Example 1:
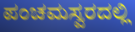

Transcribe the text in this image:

ಪಂಚಮಸ್ವರದಲ್ಲಿ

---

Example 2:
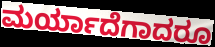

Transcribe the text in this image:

ಮರ್ಯಾದೆಗಾದರೂ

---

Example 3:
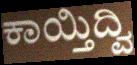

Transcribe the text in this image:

ಕಾಯ್ತಿದ್ವಿ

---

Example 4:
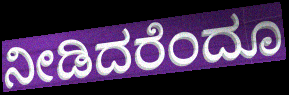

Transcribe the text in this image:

ನೀಡಿದರೆಂದೂ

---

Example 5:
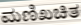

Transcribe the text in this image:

ಮಣಿಖಚಿತ